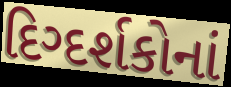
દિગ્દર્શકોનાં